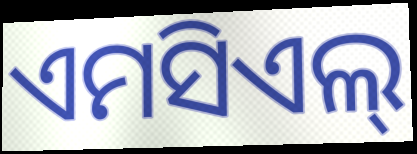
ଏମସିଏଲ୍